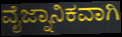
ವೈಜ್ನಾನಿಕವಾಗಿ